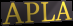
APLA